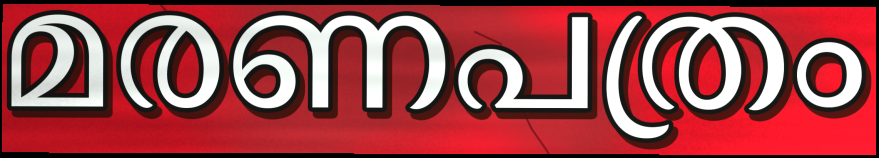
മരണപത്രം